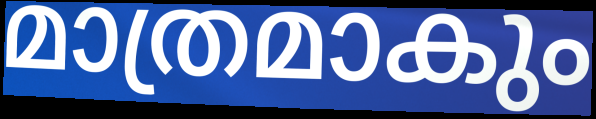
മാത്രമാകും